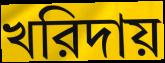
খরিদায়